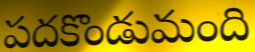
పదకొండుమంది